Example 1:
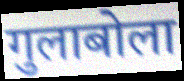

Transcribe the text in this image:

गुलाबोला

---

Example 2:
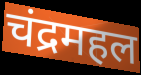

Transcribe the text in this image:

चंद्रमहल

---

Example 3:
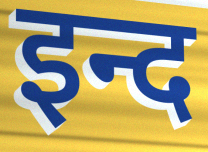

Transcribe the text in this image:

इन्द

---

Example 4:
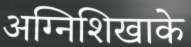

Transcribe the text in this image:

अग्निशिखाके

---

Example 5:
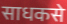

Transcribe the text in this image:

साधकसे